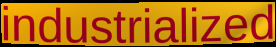
industrialized